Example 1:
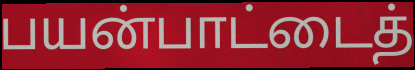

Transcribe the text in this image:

பயன்பாட்டைத்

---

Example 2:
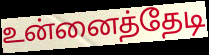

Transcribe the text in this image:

உன்னைத்தேடி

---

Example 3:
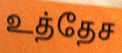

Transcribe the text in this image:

உத்தேச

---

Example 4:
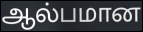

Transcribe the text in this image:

ஆல்பமான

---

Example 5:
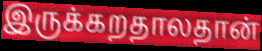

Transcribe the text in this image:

இருக்கறதாலதான்